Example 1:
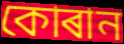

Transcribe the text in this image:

কোৰান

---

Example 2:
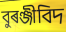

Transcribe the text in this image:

বুৰঞ্জীবিদ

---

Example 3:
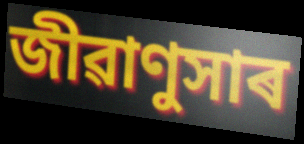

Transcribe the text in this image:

জীৱাণুসাৰ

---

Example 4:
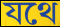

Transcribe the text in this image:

যথে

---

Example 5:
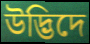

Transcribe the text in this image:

উদ্ভিদে